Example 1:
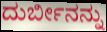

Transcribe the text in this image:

ದುರ್ಬೀನನ್ನು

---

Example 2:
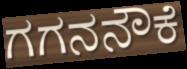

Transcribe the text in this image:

ಗಗನನೌಕೆ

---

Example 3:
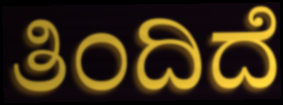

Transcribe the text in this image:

ತಿಂದಿದೆ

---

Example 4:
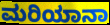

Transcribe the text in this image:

ಮರಿಯಾನಾ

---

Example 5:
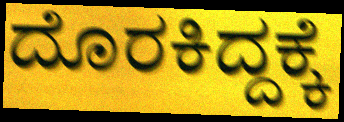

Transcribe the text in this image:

ದೊರಕಿದ್ದಕ್ಕೆ